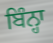
ਬਿੰਨ੍ਹਾ